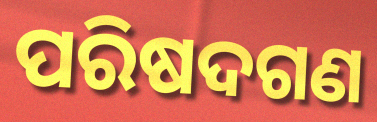
ପରିଷଦଗଣ